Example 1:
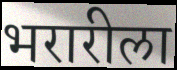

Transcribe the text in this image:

भरारीला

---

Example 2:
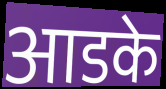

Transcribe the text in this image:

आडके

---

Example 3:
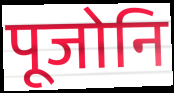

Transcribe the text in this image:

पूजोनि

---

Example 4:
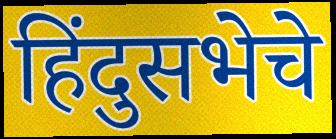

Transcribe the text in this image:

हिंदुसभेचे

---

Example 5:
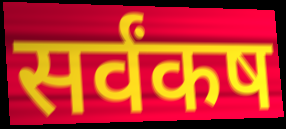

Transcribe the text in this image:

सर्वंकष